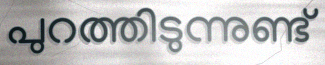
പുറത്തിടുന്നുണ്ട്